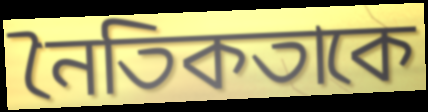
নৈতিকতাকে